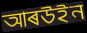
আৰউইন